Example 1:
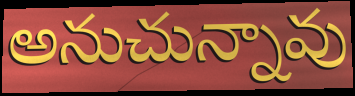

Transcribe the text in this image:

అనుచున్నావు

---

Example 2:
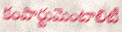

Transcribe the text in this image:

కంపార్టుమెంటాలిటీ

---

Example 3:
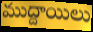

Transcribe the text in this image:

ముద్దాయిలు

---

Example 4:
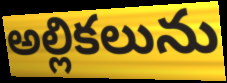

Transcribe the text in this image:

అల్లికలును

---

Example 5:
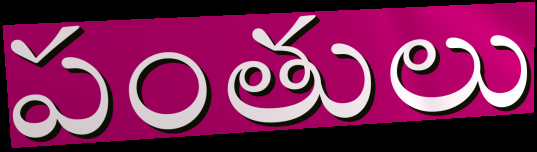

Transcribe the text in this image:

పంతులు